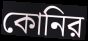
কোনির